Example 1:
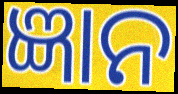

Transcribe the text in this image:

ଜ୍ଞାନ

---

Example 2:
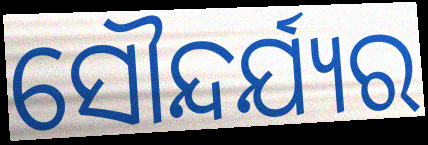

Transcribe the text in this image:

ସୌନ୍ଦର୍ଯ୍ୟର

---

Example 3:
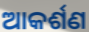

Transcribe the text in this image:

ଆକର୍ଶଣ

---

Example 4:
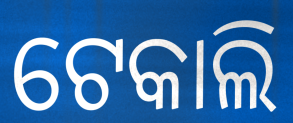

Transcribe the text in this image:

ଟେକାଲି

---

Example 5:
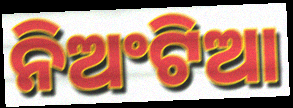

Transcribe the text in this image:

ନିଅଂଟିଆ